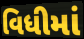
વિધીમાં